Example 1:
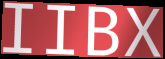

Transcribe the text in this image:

IIBX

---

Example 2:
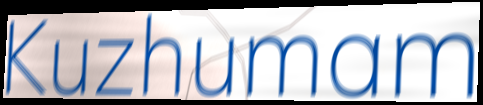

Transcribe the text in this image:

Kuzhumam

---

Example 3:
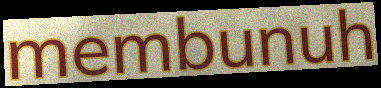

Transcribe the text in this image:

membunuh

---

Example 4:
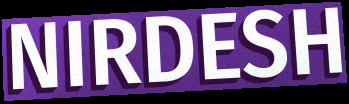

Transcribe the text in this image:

NIRDESH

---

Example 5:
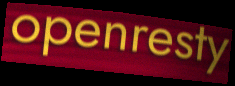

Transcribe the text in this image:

openresty